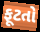
ફૂટતો